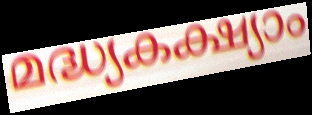
മദ്ധ്യകക്ഷ്യാം